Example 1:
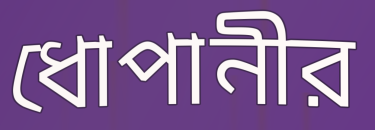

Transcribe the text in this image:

ধোপানীর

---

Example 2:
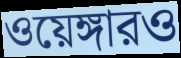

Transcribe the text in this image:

ওয়েঙ্গারও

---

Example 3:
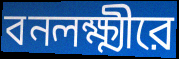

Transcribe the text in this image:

বনলক্ষ্মীরে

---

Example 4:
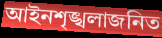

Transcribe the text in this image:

আইনশৃঙ্খলাজনিত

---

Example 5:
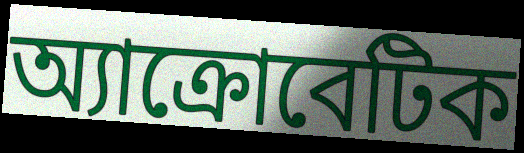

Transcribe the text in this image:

অ্যাক্রোবেটিক